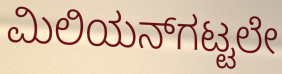
ಮಿಲಿಯನ್‌ಗಟ್ಟಲೇ